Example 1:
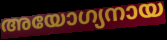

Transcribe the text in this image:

അയോഗ്യനായ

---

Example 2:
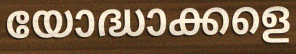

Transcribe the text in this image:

യോദ്ധാക്കളെ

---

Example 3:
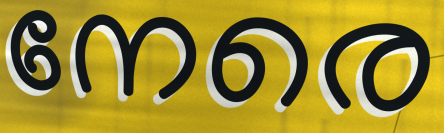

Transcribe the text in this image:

നേരെ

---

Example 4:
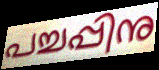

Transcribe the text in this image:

പച്ചപ്പിനു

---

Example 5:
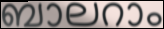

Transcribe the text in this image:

ബാലറാം